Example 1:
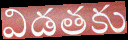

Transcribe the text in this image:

విడతకు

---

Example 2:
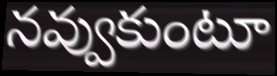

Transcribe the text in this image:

నవ్వుకుంటూ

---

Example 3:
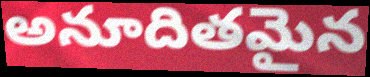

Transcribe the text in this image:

అనూదితమైన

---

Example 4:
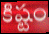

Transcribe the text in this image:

కిష్టం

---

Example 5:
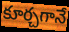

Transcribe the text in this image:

కూర్చగానే